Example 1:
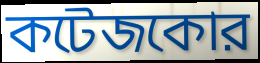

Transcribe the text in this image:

কটেজকোর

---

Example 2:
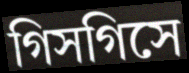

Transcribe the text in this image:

গিসগিসে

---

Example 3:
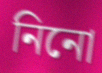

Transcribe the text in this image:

নিনো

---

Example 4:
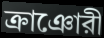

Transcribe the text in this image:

ক্রাঞোরী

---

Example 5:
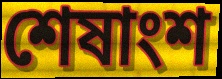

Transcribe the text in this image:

শেষাংশ